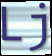
Lj